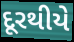
દૂરથીયે